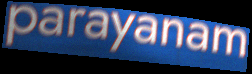
parayanam